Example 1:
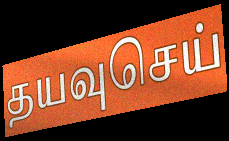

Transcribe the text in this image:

தயவுசெய்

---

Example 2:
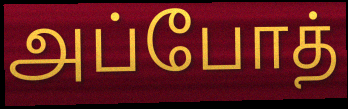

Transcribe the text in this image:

அப்போத்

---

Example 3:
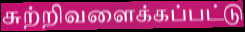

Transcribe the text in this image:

சுற்றிவளைக்கப்பட்டு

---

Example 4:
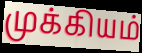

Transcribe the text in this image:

முக்கியம்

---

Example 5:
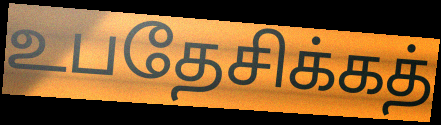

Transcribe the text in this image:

உபதேசிக்கத்